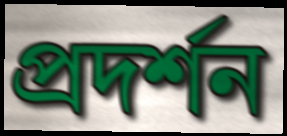
প্রদর্শন